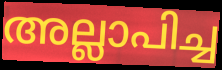
അല്ലാപിച്ച